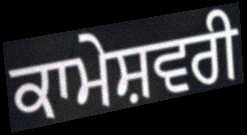
ਕਾਮੇਸ਼ਵਰੀ